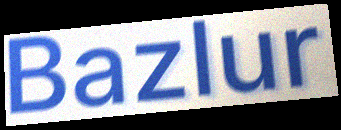
Bazlur